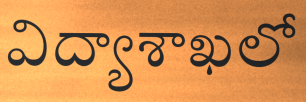
విద్యాశాఖలో